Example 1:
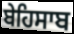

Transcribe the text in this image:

ਬੇਹਿਸਾਬ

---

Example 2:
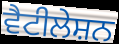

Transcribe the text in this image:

ਵੈਟੀਲੇਸ਼ਨ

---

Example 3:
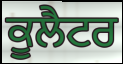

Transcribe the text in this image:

ਕੂਲੈਟਰ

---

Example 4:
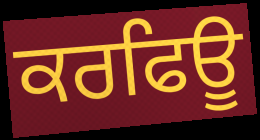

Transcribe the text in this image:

ਕਰਫਿਊ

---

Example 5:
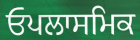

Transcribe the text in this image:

ਓਪਲਾਸਮਿਕ